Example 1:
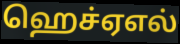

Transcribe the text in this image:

ஹெச்ஏஎல்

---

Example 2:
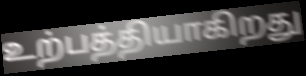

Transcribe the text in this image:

உற்பத்தியாகிறது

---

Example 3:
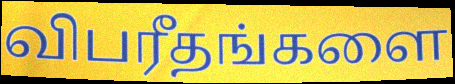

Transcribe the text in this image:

விபரீதங்களை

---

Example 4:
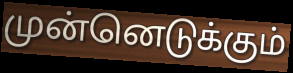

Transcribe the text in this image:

முன்னெடுக்கும்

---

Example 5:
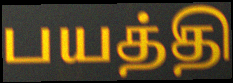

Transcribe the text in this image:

பயத்தி